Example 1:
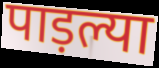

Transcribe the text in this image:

पाड़ल्या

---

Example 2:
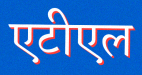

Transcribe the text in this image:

एटीएल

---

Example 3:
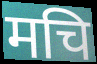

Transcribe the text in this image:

मचि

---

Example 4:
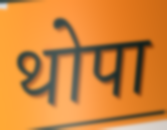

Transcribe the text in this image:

थोपा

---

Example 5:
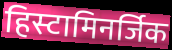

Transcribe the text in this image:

हिस्टामिनर्जिक